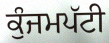
ਕੁੰਜਮਪੱਟੀ